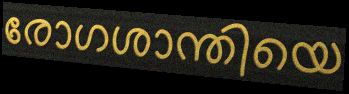
രോഗശാന്തിയെ